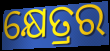
କ୍ଷେତ୍ରର